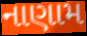
નાણામ